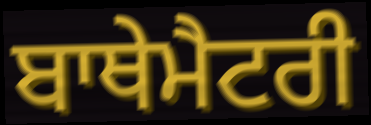
ਬਾਥੇਮੈਟਰੀ